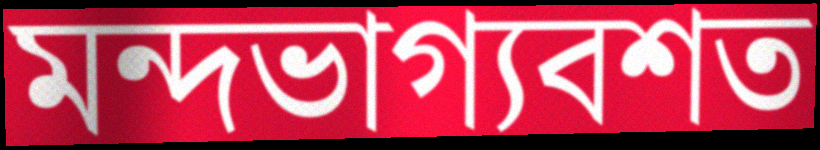
মন্দভাগ্যবশত